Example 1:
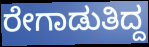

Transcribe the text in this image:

ರೇಗಾಡುತಿದ್ದ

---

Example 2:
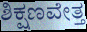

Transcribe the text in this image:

ಶಿಕ್ಷಣವೇತ್ತ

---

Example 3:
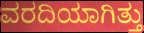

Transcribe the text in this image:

ವರದಿಯಾಗಿತ್ತು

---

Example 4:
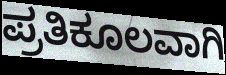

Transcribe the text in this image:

ಪ್ರತಿಕೂಲವಾಗಿ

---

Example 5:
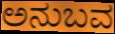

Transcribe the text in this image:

ಅನುಬವ